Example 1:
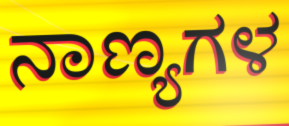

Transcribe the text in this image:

ನಾಣ್ಯಗಳ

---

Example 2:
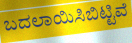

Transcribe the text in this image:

ಬದಲಾಯಿಸಿಬಿಟ್ಟಿವೆ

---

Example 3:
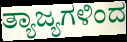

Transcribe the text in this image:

ತ್ಯಾಜ್ಯಗಳಿಂದ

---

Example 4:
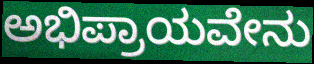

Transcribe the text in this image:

ಅಭಿಪ್ರಾಯವೇನು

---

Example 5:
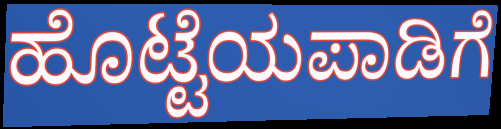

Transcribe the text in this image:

ಹೊಟ್ಟೆಯಪಾಡಿಗೆ